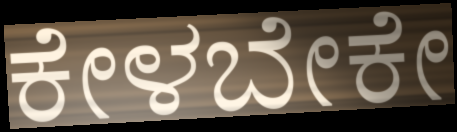
ಕೇಳಬೇಕೇ